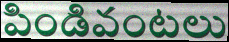
పిండివంటలు